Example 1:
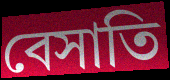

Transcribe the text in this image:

বেসাতি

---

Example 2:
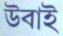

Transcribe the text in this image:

উবাই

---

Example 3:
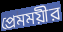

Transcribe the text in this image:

প্রেমময়ীর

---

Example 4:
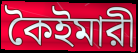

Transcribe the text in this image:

কৈইমারী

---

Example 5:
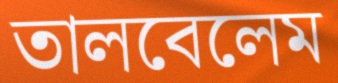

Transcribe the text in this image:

তালবেলেম